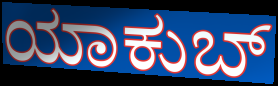
ಯಾಕುಬ್